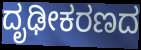
ದೃಢೀಕರಣದ